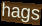
hags